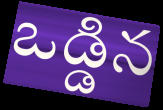
ఒడ్డిన